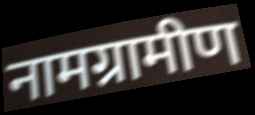
नामग्रामीण